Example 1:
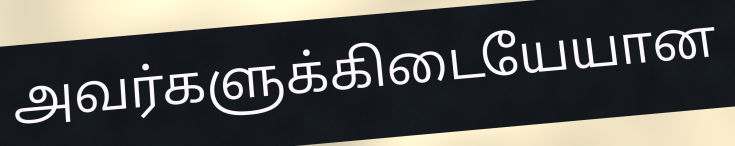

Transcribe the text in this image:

அவர்களுக்கிடையேயான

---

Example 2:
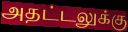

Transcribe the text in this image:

அதட்டலுக்கு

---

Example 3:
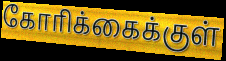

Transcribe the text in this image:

கோரிக்கைக்குள்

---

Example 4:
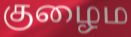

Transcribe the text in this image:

குழைம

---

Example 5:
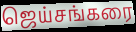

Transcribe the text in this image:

ஜெய்சங்கரை